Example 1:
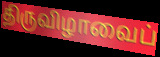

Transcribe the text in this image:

திருவிழாவைப்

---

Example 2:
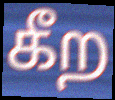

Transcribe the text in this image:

கீற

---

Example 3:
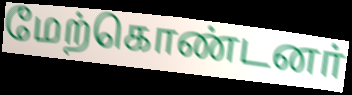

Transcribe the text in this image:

மேற்கொண்டனர்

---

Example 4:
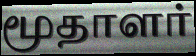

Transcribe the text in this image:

மூதாளர்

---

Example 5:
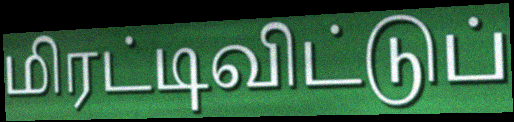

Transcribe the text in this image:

மிரட்டிவிட்டுப்